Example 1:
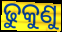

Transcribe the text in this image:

ଢୁକୁଣୁ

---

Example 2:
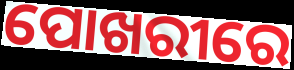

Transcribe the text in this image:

ପୋଖରୀରେ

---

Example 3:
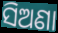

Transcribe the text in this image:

ସିଅଣା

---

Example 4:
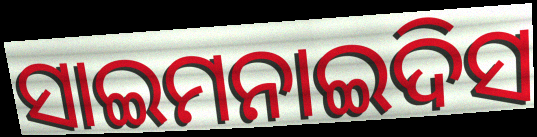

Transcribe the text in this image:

ସାଇମନାଇଦିସ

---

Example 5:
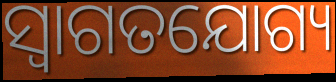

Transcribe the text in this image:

ସ୍ବାଗତଯୋଗ୍ୟ